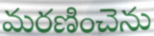
మరణించెను